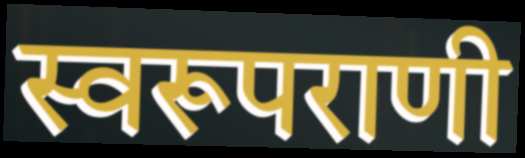
स्वरूपराणी